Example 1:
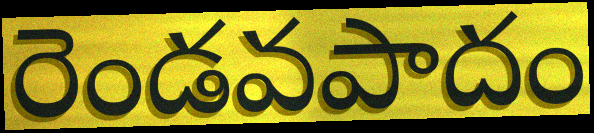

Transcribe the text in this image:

రెండవపాదం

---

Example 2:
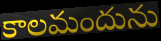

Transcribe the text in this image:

కాలమందును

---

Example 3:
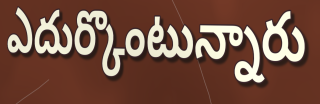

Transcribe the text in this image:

ఎదుర్కొంటున్నారు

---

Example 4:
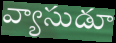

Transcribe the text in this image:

వ్యాసుడూ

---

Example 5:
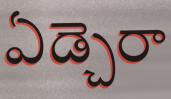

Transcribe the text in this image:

ఏడ్చెరా